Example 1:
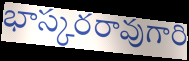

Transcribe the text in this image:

భాస్కరరావుగారి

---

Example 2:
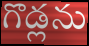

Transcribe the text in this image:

గొడ్లను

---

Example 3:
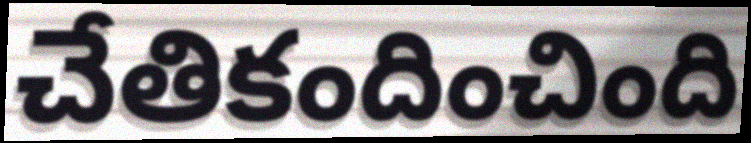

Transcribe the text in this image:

చేతికందించింది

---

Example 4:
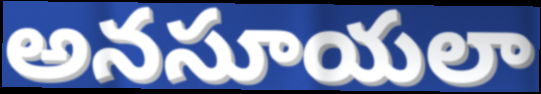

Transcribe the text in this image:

అనసూయలా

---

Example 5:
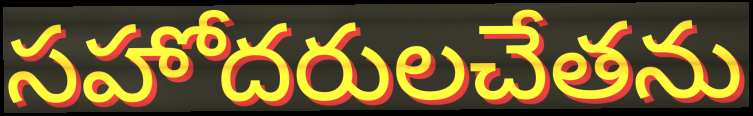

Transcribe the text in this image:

సహోదరులచేతను